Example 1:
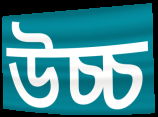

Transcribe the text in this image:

উচ্চ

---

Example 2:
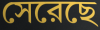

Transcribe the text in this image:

সেরেছে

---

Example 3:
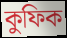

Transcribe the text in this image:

কুফিক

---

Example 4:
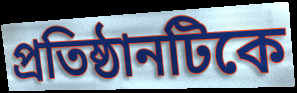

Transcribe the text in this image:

প্রতিষ্ঠানটিকে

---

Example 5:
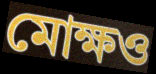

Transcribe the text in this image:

মোক্ষও